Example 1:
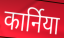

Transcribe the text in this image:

कार्निया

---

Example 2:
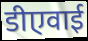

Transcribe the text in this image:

डीएवाई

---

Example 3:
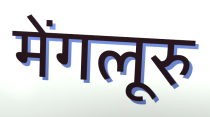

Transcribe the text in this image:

मेंगलूरु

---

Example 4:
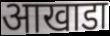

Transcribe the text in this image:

आखाडा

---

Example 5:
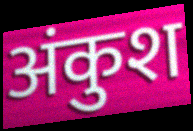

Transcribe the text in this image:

अंकुश